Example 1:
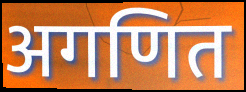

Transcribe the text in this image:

अगणित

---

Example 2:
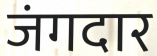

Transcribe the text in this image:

जंगदार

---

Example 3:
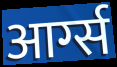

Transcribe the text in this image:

आर्ग्स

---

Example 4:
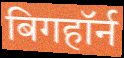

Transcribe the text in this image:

बिगहॉर्न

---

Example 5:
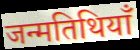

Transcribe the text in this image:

जन्मतिथियाँ